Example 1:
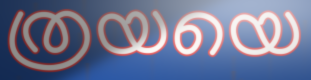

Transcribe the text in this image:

ത്രയയെ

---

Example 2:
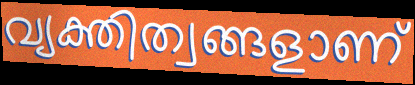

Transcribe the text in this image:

വ്യക്തിത്വങ്ങളാണ്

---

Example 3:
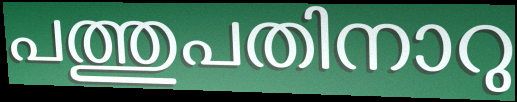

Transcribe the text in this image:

പത്തുപതിനാറു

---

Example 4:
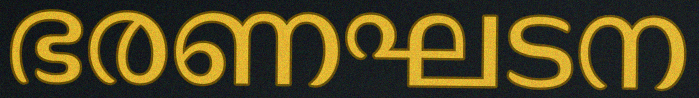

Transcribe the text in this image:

ഭരണഘടന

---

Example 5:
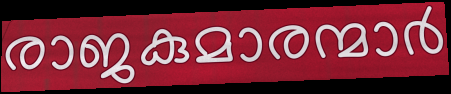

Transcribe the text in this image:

രാജകുമാരന്മാർ